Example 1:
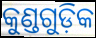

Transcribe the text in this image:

କୁଣ୍ଡଗୁଡ଼ିକ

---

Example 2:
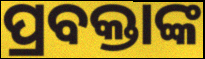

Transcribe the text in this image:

ପ୍ରବକ୍ତାଙ୍କ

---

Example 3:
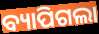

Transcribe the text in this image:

ବ୍ୟାପିଗଲା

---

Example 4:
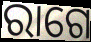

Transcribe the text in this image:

ରାଗେ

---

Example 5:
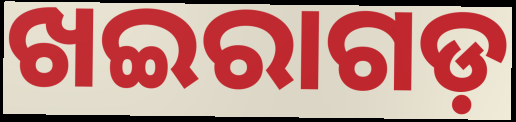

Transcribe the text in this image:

ଖଇରାଗଡ଼